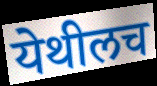
येथीलच